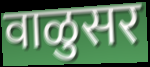
वाळुसर